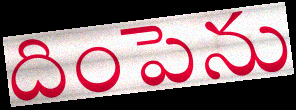
దింపెను